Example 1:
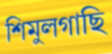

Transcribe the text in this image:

শিমুলগাছি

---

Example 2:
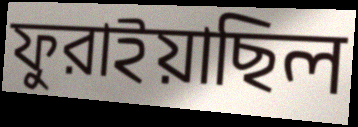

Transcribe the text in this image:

ফুরাইয়াছিল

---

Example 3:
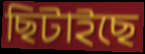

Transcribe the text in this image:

ছিটাইছে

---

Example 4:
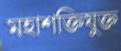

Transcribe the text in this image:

মহাশক্তিযুক্ত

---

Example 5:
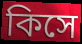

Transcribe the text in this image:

কিসে